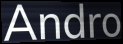
Andro